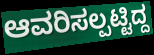
ಆವರಿಸಲ್ಪಟ್ಟಿದ್ದ